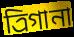
ত্রিগানা